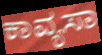
ಕಾವ್ಯಸಾ